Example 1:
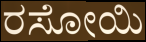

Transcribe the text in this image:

ರಸೋಯಿ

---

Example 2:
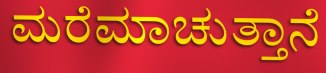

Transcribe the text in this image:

ಮರೆಮಾಚುತ್ತಾನೆ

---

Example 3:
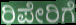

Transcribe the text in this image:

ರಿಪೇರಿಗೆ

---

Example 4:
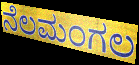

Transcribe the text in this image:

ನೆಲಮಂಗಲ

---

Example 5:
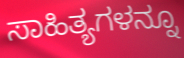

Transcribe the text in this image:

ಸಾಹಿತ್ಯಗಳನ್ನೂ